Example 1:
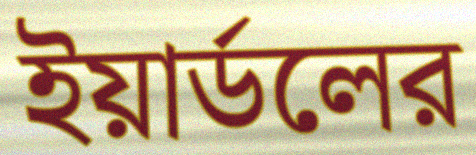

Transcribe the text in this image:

ইয়ার্ডলের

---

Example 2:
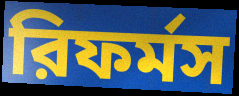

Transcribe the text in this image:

রিফর্মস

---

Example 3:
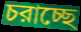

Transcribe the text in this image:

চরাচ্ছে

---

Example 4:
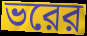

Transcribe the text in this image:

ভরের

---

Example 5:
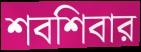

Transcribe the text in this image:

শবশিবার